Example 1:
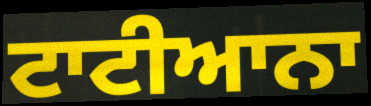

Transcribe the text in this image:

ਟਾਟੀਆਨਾ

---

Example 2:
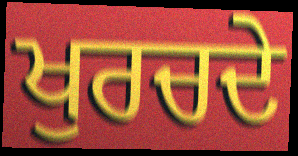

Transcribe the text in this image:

ਖੁਰਚਦੇ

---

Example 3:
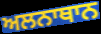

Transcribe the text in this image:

ਅਲਨਾਥਾਨ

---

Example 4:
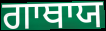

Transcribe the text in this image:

ਗਾਥਾਯ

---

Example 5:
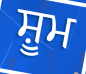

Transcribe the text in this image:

ਸ਼ੂਮ